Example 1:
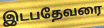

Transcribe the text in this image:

இடபதேவரை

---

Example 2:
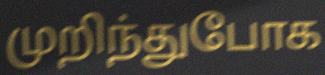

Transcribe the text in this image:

முறிந்துபோக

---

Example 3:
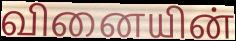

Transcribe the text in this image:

வினையின்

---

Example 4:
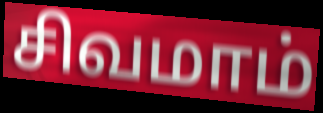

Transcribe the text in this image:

சிவமாம்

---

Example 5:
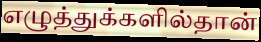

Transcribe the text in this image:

எழுத்துக்களில்தான்